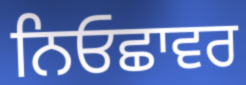
ਨਿਓਛਾਵਰ